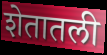
शेतातली